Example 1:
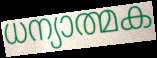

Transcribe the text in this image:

ധന്യാത്മക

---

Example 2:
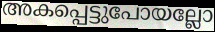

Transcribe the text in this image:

അകപ്പെട്ടുപോയല്ലോ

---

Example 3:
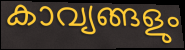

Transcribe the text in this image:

കാവ്യങ്ങളും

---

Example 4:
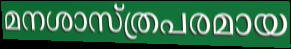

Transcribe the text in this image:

മനശാസ്ത്രപരമായ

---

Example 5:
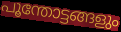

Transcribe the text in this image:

പൂന്തോട്ടങ്ങളും